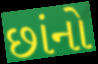
છાંનો